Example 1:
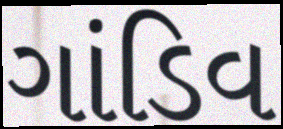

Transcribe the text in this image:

ગાંડિવ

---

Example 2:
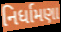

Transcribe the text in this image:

નિર્ધામણા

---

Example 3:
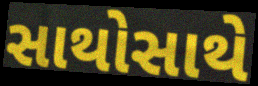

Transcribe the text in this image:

સાથોસાથે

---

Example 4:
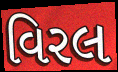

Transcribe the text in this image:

વિરલ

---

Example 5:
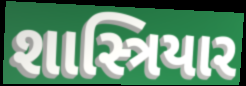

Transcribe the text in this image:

શાસ્ત્રિયાર